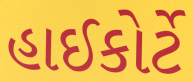
હાઈકોર્ટે